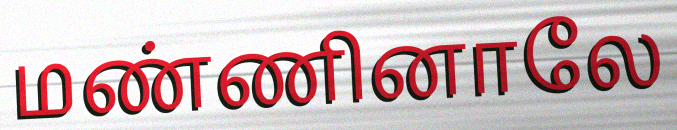
மண்ணினாலே